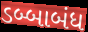
ડબ્બાબંધ